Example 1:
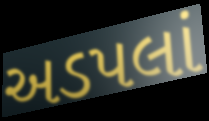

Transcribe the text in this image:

અડપલાં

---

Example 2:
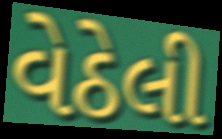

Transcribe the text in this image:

વેઠેલી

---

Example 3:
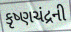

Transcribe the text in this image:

કૃષ્ણચંદ્રની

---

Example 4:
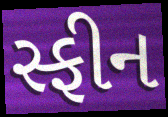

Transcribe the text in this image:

સ્ફીન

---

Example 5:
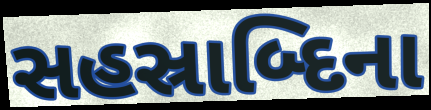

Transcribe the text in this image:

સહસ્રાબ્દિના